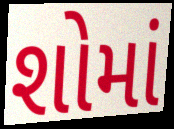
શોમાં